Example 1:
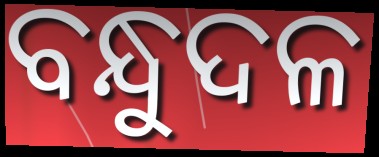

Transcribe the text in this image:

ବନ୍ଧୁଦଳ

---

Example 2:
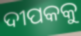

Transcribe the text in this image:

ଦୀପକକୁ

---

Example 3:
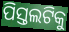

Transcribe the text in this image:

ପିସ୍ତଲଟିକୁ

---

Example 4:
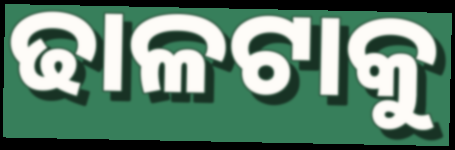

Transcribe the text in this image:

ଢାଳଟାକୁ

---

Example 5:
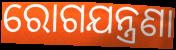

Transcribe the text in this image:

ରୋଗଯନ୍ତ୍ରଣା